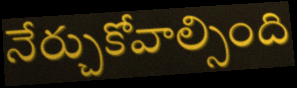
నేర్చుకోవాల్సింది